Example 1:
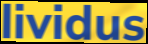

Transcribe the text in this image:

lividus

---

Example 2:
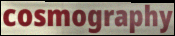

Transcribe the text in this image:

cosmography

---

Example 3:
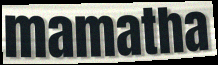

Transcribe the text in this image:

mamatha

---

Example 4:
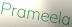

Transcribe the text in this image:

Prameela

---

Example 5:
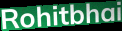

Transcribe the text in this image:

Rohitbhai